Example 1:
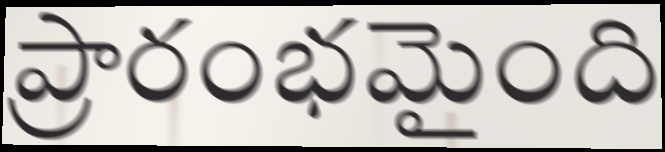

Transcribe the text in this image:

ప్రారంభమైంది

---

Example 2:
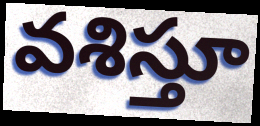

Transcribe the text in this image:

వశిస్తూ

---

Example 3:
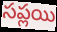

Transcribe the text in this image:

సప్లయి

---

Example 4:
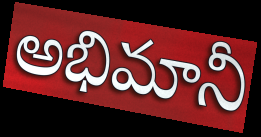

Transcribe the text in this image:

అభిమానీ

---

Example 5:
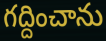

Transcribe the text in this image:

గద్దించాను